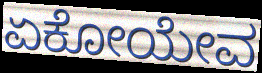
ಏಕೋಯೇವ